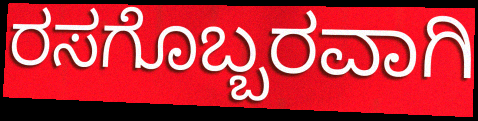
ರಸಗೊಬ್ಬರವಾಗಿ